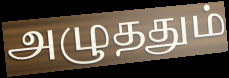
அழுததும்